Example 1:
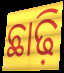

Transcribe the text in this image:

ଛାଢ଼ି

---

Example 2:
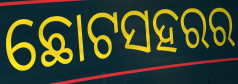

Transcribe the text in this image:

ଛୋଟସହରର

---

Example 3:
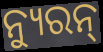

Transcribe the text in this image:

ନ୍ୟୁରନ୍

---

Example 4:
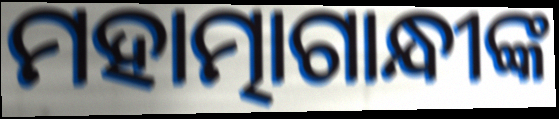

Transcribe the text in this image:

ମହାତ୍ମାଗାନ୍ଧୀଙ୍କ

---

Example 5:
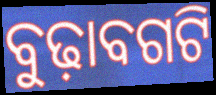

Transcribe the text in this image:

ବୁଢ଼ାବଗଟି